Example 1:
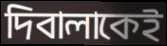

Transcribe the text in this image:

দিবালাকেই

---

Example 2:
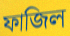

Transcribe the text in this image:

ফাজিল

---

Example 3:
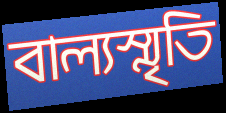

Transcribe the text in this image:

বাল্যস্মৃতি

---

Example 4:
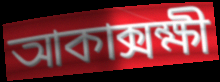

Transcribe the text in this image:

আকাক্সক্ষী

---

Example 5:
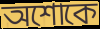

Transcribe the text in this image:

অশোকে